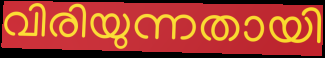
വിരിയുന്നതായി